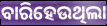
ବାରିହେଉଥିଲା